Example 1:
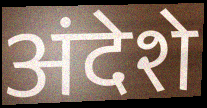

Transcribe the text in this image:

अंदेशे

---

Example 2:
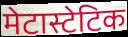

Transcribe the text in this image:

मेटास्टेटिक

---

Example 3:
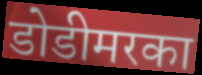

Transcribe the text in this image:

डोडीमरका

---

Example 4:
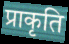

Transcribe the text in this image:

प्राकृति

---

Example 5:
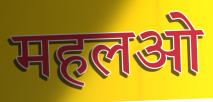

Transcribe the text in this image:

महलओ